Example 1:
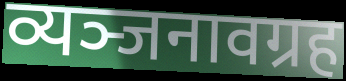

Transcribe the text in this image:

व्यञ्जनावग्रह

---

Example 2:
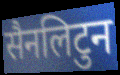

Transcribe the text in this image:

सैनलिटुन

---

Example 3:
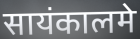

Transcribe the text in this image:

सायंकालमे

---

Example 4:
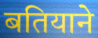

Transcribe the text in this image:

बतियाने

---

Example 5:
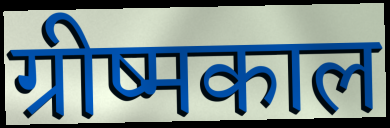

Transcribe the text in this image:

ग्रीष्मकाल